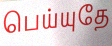
பெய்யுதே